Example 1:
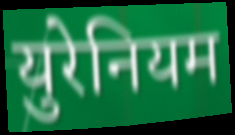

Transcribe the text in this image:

युरेनियम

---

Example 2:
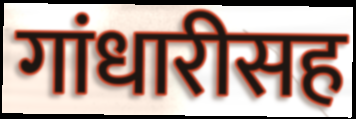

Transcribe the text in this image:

गांधारीसह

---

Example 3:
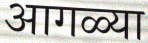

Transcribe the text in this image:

आगळ्या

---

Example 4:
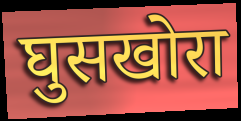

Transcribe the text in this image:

घुसखोरा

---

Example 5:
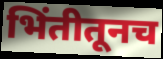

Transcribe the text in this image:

भिंतीतूनच